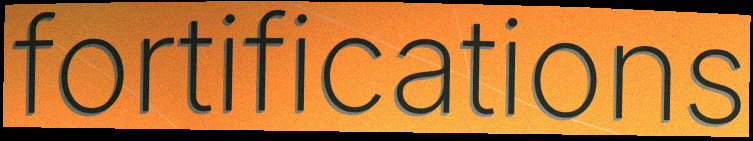
fortifications